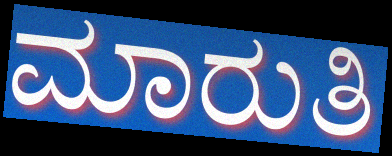
ಮಾರುತಿ